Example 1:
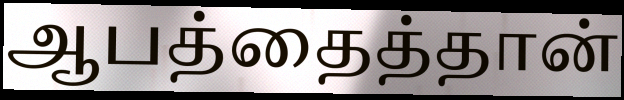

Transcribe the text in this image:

ஆபத்தைத்தான்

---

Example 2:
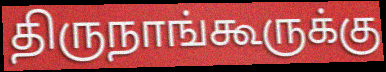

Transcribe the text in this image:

திருநாங்கூருக்கு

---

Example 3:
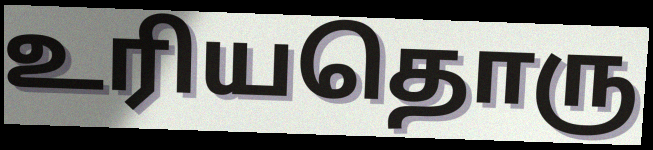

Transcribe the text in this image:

உரியதொரு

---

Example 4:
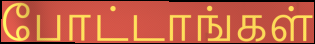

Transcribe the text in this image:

போட்டாங்கள்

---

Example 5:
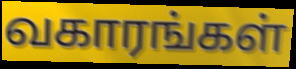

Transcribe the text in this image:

வகாரங்கள்